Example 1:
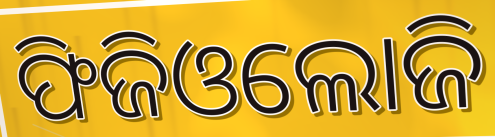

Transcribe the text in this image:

ଫିଜିଓଲୋଜି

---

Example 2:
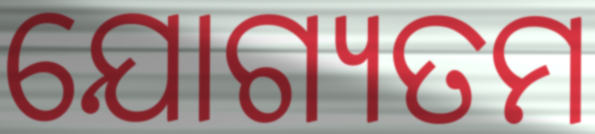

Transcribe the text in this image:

ଯୋଗ୍ୟତମ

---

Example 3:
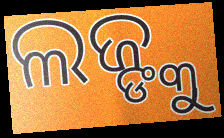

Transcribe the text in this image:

ଲଜ୍ଙ୍କୁ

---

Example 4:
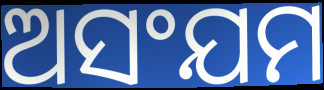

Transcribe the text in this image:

ଅସଂଯମ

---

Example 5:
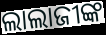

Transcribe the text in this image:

ଲାଲାଜୀଙ୍କ